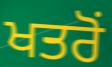
ਖਤਰੋਂ